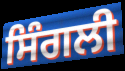
ਸਿੰਗਲੀ